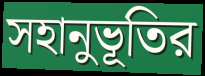
সহানুভূতির